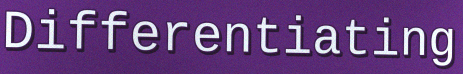
Differentiating